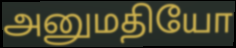
அனுமதியோ